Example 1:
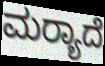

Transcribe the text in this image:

ಮರ‍್ಯಾದೆ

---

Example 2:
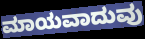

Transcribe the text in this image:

ಮಾಯವಾದುವು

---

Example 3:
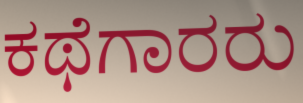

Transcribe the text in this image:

ಕಥೆಗಾರರು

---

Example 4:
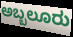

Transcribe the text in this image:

ಅಬ್ಬಲೂರು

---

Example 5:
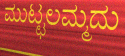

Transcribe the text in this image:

ಮುಟ್ಟಲಮ್ಮದು